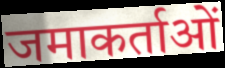
जमाकर्ताओं